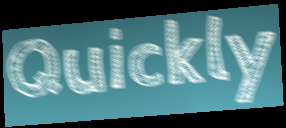
Quickly